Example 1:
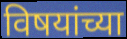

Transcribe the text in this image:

विषयांच्या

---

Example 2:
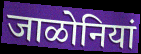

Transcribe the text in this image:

जाळोनियां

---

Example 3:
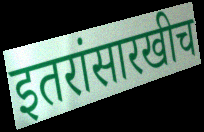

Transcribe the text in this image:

इतरांसारखीच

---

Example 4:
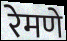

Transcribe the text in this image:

रेमणे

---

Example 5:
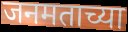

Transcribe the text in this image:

जनमताच्या